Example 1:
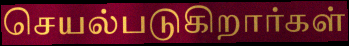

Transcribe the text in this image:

செயல்படுகிறார்கள்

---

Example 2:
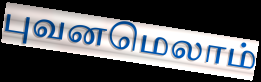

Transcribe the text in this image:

புவனமெலாம்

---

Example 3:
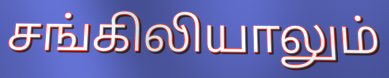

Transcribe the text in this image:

சங்கிலியாலும்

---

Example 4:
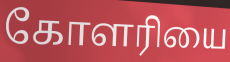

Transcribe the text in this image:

கோளரியை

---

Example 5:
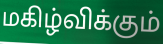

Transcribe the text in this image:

மகிழ்விக்கும்